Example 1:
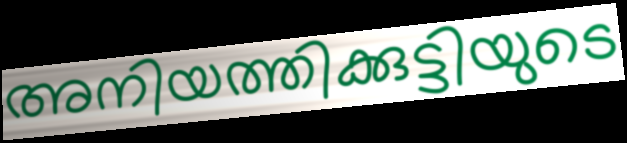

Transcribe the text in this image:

അനിയത്തിക്കുട്ടിയുടെ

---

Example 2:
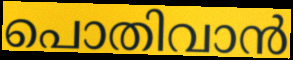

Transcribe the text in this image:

പൊതിവാൻ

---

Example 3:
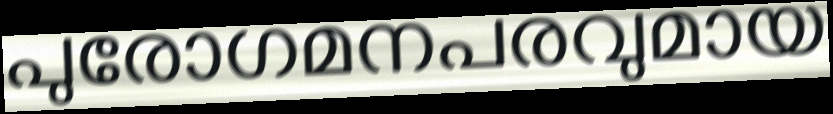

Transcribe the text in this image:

പുരോഗമനപരവുമായ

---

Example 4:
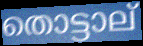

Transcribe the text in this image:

തൊട്ടാല്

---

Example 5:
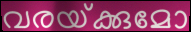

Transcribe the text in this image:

വരയ്‌ക്കുമോ